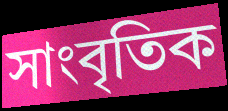
সাংবৃতিক